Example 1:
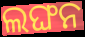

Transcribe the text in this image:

ଲଙ୍ଘନ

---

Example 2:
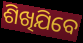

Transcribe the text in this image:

ଶିଖିଯିବେ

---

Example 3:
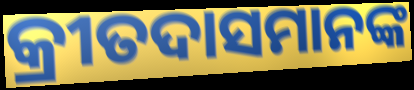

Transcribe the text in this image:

କ୍ରୀତଦାସମାନଙ୍କ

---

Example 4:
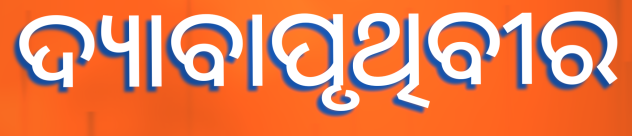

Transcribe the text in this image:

ଦ୍ୟାବାପୃଥିବୀର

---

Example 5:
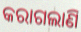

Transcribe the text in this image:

କରାଗଲାଣି